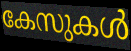
കേസുകൾ